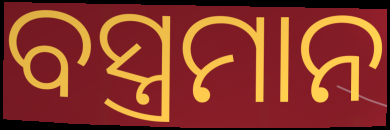
ବସ୍ତ୍ରମାନ